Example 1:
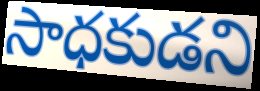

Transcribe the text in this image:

సాధకుడని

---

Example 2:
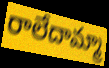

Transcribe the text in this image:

రాలేదామ్మా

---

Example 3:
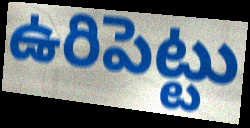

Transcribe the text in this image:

ఉరిపెట్టు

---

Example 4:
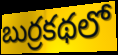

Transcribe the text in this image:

బుర్రకథలో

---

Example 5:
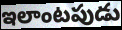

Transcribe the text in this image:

ఇలాంటపుడు